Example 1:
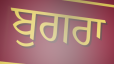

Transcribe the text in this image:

ਬੁਗਰਾ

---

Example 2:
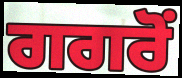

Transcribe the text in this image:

ਗਗਰੋਂ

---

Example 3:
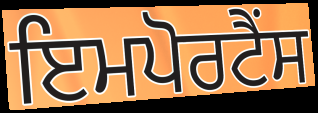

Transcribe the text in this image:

ਇਮਪੋਰਟੈਂਸ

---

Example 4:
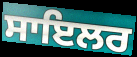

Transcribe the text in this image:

ਸਾਇਲਰ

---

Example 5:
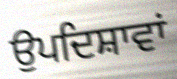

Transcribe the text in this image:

ਉਪਦਿਸ਼ਾਵਾਂ